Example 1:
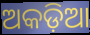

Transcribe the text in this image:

ଅକଡ଼ିଆ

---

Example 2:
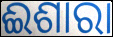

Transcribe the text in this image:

ଈଶାରା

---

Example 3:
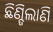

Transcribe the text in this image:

ଛିଣ୍ଡିଲାଣି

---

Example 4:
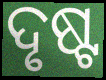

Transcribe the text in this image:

ଦୃଷ୍ଟ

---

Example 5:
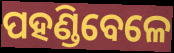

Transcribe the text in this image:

ପହଣ୍ଡିବେଳେ